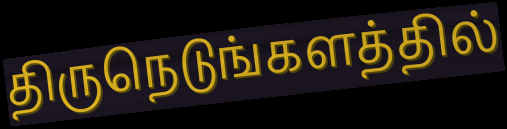
திருநெடுங்களத்தில்